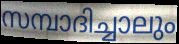
സമ്പാദിച്ചാലും